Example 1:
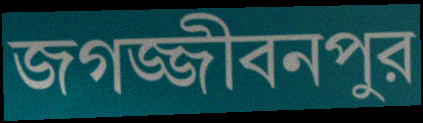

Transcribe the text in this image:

জগজ্জীবনপুর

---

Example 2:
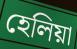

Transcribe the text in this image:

হেলিয়া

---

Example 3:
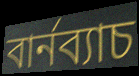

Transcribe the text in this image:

বার্নব্যাচ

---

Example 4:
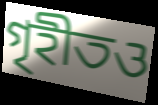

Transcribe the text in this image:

গৃহীতও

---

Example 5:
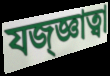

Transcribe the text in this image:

যজ্জ্ঞাত্বা